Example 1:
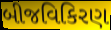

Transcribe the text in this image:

બીજવિકિરણ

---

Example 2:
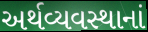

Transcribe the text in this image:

અર્થવ્યવસ્થાનાં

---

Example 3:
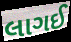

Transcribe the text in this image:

લાગઈ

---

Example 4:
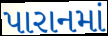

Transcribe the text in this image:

પારાનમાં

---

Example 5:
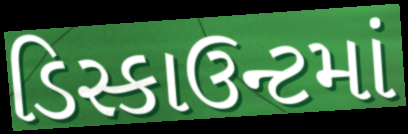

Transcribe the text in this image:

ડિસ્કાઉન્ટમાં